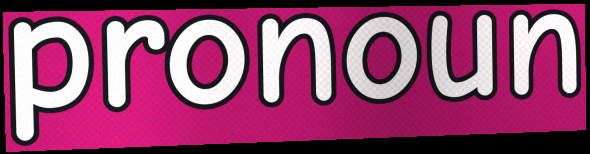
pronoun